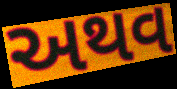
અથવ